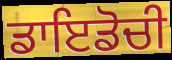
ਡਾਇਡੋਚੀ